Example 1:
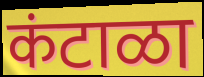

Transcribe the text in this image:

कंटाळा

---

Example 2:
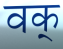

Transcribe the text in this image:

वक्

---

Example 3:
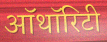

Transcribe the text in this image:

ऑथॉरिटी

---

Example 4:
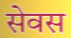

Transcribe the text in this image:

सेवस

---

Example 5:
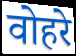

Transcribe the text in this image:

वोहरे